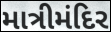
માત્રીમંદિર